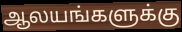
ஆலயங்களுக்கு